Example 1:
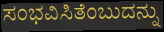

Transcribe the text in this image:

ಸಂಭವಿಸಿತೆಂಬುದನ್ನು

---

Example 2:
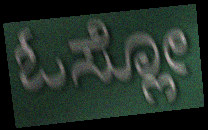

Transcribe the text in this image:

ಓಸ್ಲೋ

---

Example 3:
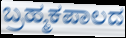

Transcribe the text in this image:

ಬ್ರಹ್ಮಕಪಾಲದ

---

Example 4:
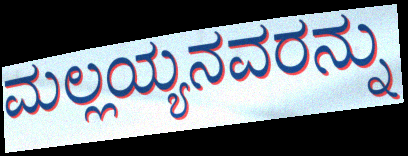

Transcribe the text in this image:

ಮಲ್ಲಯ್ಯನವರನ್ನು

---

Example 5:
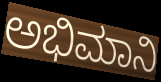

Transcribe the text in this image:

ಅಭಿಮಾನಿ